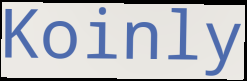
Koinly